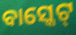
ବାସ୍କେଟ୍